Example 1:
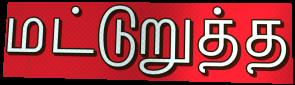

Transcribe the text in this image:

மட்டுறுத்த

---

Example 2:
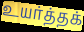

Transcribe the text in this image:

உயர்த்தக்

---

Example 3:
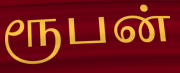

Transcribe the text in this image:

ரூபன்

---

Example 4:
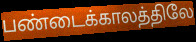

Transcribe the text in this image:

பண்டைக்காலத்திலே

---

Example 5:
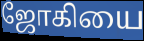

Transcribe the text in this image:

ஜோகியை